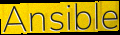
Ansible